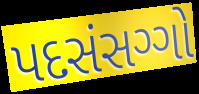
પદસંસગ્ગો